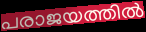
പരാജയത്തിൽ